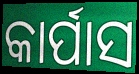
କାର୍ପାସ